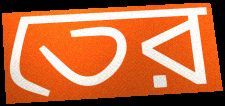
তের